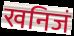
खनिजं